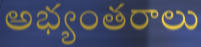
అభ్యంతరాలు